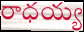
రాధయ్య